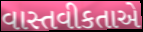
વાસ્તવીકતાએ